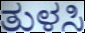
ತುಳಸಿ